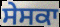
ਸੇਸਕਾ